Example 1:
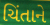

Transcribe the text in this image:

ચિંતાને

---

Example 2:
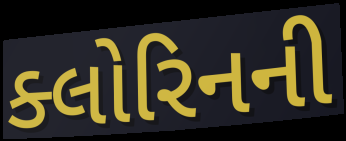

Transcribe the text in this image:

ક્લોરિનની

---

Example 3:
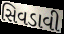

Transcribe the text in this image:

સિવડાવી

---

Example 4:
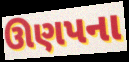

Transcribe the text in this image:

ઊણપના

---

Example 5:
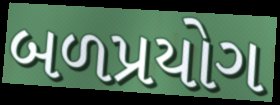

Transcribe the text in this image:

બળપ્રયોગ